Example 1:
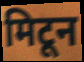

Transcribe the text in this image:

मिटून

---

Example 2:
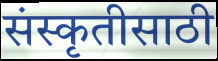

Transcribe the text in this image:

संस्कृतीसाठी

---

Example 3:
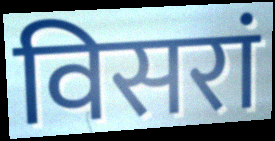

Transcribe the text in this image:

विसरां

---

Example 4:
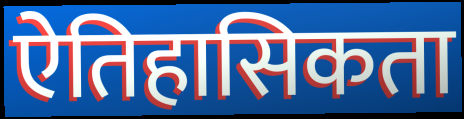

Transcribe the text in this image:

ऐतिहासिकता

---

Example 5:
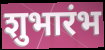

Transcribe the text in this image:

शुभारंभ